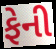
ફેની